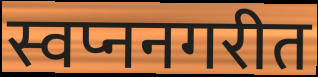
स्वप्ननगरीत